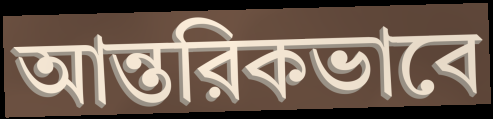
আন্তরিকভাবে